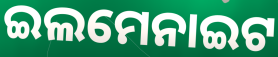
ଇଲମେନାଇଟ